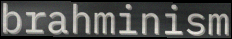
brahminism